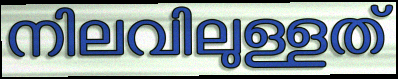
നിലവിലുള്ളത്